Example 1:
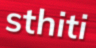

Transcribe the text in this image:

sthiti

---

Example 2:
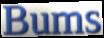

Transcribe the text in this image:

Bums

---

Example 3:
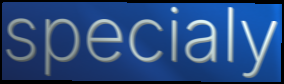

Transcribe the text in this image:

specialy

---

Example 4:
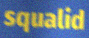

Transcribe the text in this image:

squalid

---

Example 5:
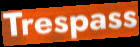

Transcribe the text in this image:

Trespass